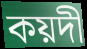
কয়দী